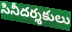
సినీదర్శకులు